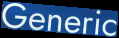
Generic